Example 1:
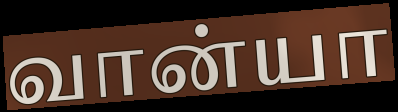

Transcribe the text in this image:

வான்யா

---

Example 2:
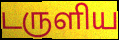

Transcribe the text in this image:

டருளிய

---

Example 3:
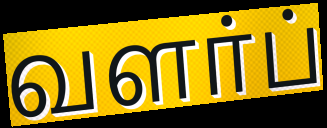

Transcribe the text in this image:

வளர்ப்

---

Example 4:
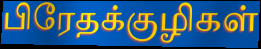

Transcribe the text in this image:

பிரேதக்குழிகள்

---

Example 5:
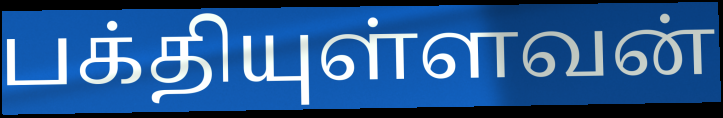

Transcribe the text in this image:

பக்தியுள்ளவன்